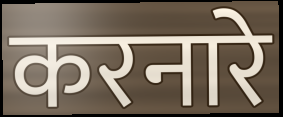
करनारे